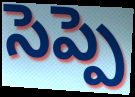
సెప్పె